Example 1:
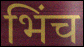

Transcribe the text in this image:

भिंच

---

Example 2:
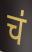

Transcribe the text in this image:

च॑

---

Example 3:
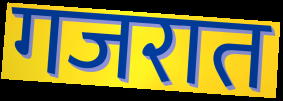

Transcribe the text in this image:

गजरात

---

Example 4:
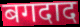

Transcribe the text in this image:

बगदाद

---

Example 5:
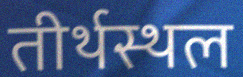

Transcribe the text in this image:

तीर्थस्थल